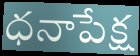
ధనాపేక్ష